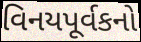
વિનયપૂર્વકનો